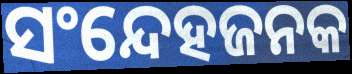
ସଂନ୍ଦେହଜନକ